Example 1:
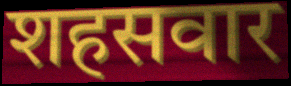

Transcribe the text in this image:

शहसवार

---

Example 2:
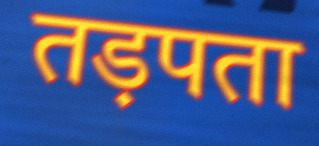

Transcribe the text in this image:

तड़पता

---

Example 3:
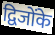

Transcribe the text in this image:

द्विजोंके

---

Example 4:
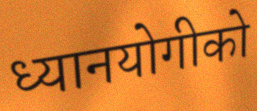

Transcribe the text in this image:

ध्यानयोगीको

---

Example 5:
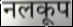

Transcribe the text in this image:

नलकूप